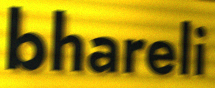
bhareli